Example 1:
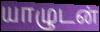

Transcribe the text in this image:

யாழுடன்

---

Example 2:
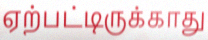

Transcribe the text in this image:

ஏற்பட்டிருக்காது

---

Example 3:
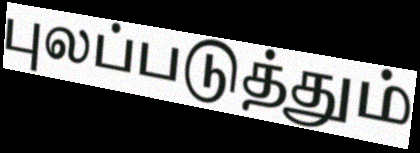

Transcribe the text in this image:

புலப்படுத்தும்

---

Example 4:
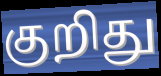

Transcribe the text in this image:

குறிது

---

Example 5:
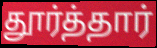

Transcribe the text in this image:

தூர்த்தார்